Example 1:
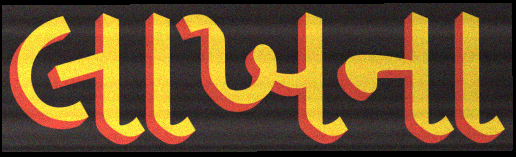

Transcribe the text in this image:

લાખના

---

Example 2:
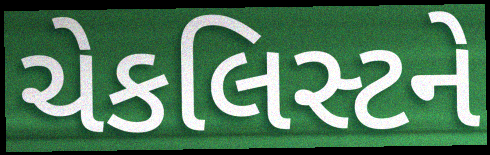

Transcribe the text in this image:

ચેકલિસ્ટને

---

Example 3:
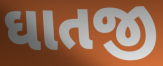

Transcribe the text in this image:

ઘાતજી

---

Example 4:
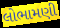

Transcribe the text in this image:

લોભામણી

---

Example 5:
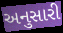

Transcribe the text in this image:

અનુસારી